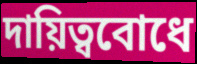
দায়িত্ববোধে